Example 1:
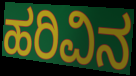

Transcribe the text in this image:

ಹರಿವಿನ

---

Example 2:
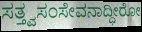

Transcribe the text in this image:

ಸತ್ತ್ವಸಂಸೇವನಾದ್ಧೀರೋ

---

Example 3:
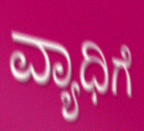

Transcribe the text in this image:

ವ್ಯಾಧಿಗೆ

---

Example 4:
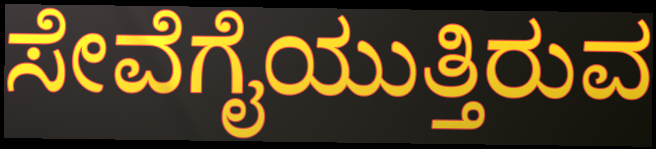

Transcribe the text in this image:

ಸೇವೆಗೈಯುತ್ತಿರುವ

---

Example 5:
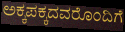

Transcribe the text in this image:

ಅಕ್ಕಪಕ್ಕದವರೊಂದಿಗೆ